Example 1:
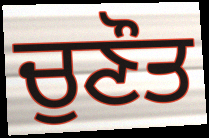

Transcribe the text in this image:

ਚੁਣੌਤ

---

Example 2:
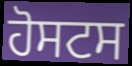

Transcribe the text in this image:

ਹੋਸਟਸ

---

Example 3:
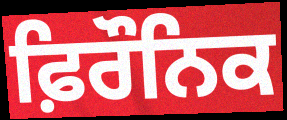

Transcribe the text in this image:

ਫ਼ਿਰੌਨਿਕ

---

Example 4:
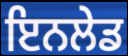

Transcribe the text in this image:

ਇਨਲੇਡ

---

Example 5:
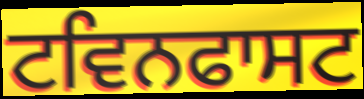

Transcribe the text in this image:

ਟਵਿਨਫਾਸਟ